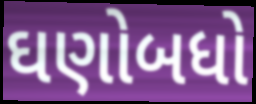
ઘણોબધો